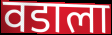
वडाला